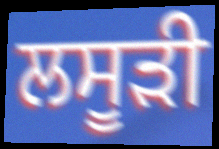
ਲਸੂੜੀ